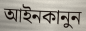
আইনকানুন